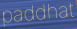
paddhat